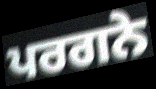
ਪਰਗਨੇ